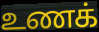
உணக்